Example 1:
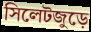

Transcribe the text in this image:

সিলেটজুড়ে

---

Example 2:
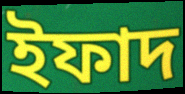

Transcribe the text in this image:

ইফাদ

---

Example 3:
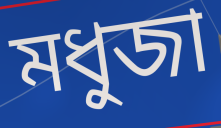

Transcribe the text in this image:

মধুজা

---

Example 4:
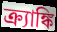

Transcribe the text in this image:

ক্র্যাঙ্কি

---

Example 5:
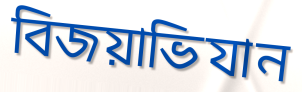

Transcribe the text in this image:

বিজয়াভিযান